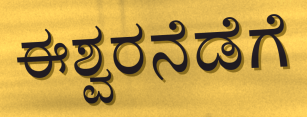
ಈಶ್ವರನೆಡೆಗೆ